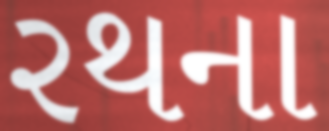
રથના